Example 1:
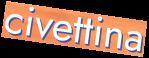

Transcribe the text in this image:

civettina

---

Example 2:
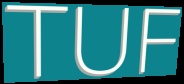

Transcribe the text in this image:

TUF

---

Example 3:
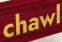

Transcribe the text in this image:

chawl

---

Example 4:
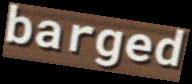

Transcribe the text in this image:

barged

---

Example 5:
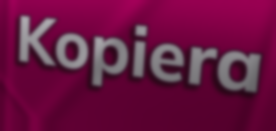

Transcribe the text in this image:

Kopiera